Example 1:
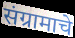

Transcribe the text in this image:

संग्रामाचे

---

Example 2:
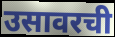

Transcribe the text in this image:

उसावरची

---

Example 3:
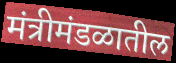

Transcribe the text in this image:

मंत्रीमंडळातील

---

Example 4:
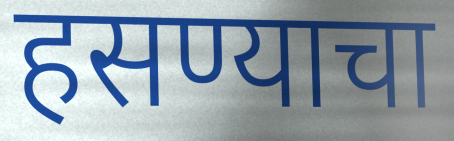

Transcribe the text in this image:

हसण्याचा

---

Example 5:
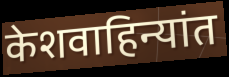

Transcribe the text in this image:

केशवाहिन्यांत